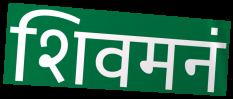
शिवमनं